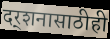
दर्शनासाठीही